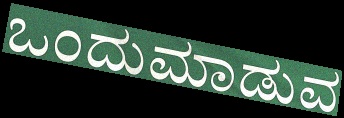
ಒಂದುಮಾಡುವ